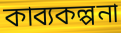
কাব্যকল্পনা